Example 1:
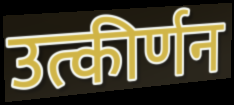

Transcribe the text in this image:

उत्कीर्णन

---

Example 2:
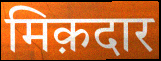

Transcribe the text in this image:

मिक़दार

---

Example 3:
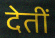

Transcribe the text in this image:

देतीं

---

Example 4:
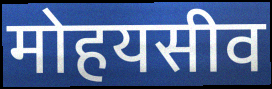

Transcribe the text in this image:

मोहयसीव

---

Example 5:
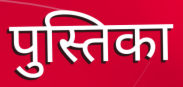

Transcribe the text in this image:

पुस्तिका